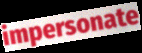
impersonate